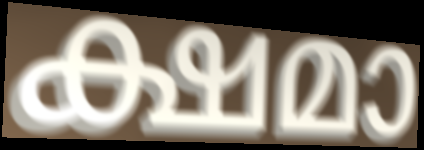
ക്ഷമാ